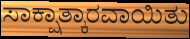
ಸಾಕ್ಷಾತ್ಕಾರವಾಯಿತು